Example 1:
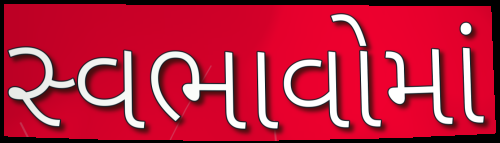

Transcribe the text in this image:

સ્વભાવોમાં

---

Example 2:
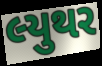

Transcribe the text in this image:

લ્યુથર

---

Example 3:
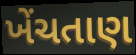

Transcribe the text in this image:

ખેંચતાણ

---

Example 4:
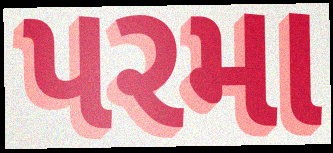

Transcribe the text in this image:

પરમા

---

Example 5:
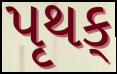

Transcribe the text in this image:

પૃથક્